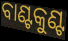
ବାଣ୍ଟକୁଣ୍ଟ